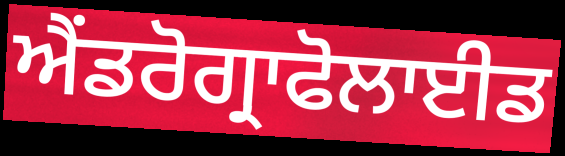
ਐਂਡਰੋਗ੍ਰਾਫੋਲਾਈਡ